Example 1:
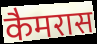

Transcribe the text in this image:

कैमरास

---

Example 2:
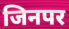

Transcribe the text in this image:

जिनपर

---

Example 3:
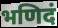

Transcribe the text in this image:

भणिदं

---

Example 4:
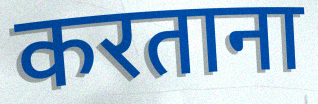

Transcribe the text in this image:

करताना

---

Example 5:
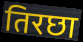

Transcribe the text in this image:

तिरछा